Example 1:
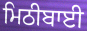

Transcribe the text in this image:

ਮਿਠੀਬਾਈ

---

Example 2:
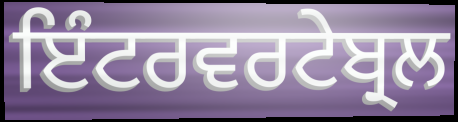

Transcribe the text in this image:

ਇੰਟਰਵਰਟੇਬ੍ਰਲ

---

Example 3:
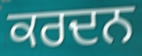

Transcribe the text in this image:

ਕਰਦਨ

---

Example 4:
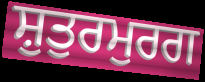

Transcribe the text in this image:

ਸ਼ੁਤੁਰਮੁਰਗ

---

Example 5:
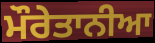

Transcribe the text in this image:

ਮੌਰੇਤਾਨੀਆ